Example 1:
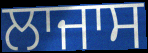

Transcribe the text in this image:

ਲਾਜਾਸ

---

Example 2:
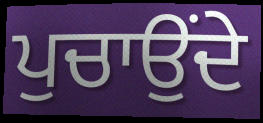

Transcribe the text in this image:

ਪੁਚਾਉਂਦੇ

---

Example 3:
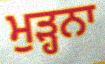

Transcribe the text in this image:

ਮੁੜ੍ਹਨਾ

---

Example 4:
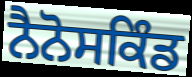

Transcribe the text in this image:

ਨੈਨੋਸਕਿੰਡ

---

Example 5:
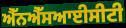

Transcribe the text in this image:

ਐੱਨਐੱਸਆਈਸੀਟੀ